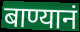
बाण्यानं